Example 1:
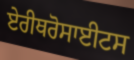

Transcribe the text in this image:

ਏਰੀਥਰੋਸਾਈਟਸ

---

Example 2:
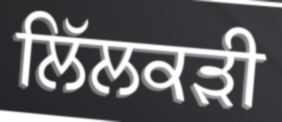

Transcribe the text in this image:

ਲਿੱਲਕੜੀ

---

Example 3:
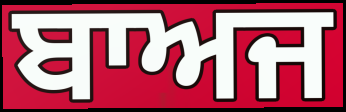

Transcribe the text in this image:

ਬਾਅਜ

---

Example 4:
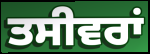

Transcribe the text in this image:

ਤਸੀਵਰਾਂ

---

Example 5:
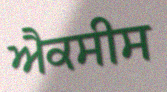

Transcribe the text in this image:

ਐਕਸੀਸ